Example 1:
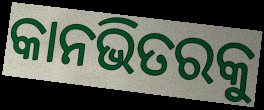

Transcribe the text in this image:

କାନଭିତରକୁ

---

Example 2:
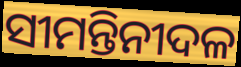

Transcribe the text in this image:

ସୀମନ୍ତିନୀଦଳ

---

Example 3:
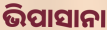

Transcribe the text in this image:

ଭିପାସାନା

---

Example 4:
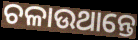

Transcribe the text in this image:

ଚଳାଉଥାନ୍ତେ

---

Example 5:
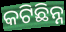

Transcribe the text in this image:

କଟିଛିନ୍ନ